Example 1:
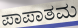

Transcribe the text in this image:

ಪಾಪಾತಮ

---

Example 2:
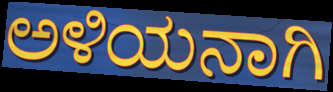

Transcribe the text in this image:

ಅಳಿಯನಾಗಿ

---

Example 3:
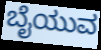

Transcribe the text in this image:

ಬೈಯುವ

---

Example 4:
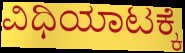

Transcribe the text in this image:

ವಿಧಿಯಾಟಕ್ಕೆ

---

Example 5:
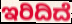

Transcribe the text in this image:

ಇರಿದಿದೆ